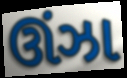
ઊંઝા